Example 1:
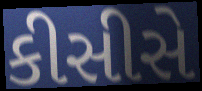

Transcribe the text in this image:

કીસીસે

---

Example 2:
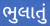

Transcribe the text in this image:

ભુલાતું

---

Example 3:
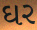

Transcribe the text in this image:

ઘર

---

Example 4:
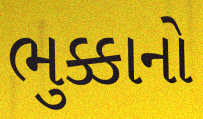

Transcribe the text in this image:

ભુક્કાનો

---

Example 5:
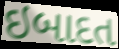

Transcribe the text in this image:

ઇબાદત